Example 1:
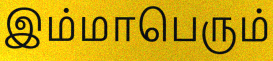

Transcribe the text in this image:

இம்மாபெரும்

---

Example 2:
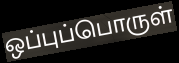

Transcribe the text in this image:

ஒப்புப்பொருள்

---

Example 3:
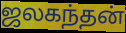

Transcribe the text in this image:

ஜலகந்தன்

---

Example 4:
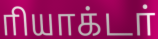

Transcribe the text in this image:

ரியாக்டர்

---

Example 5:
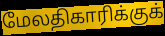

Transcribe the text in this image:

மேலதிகாரிக்குக்